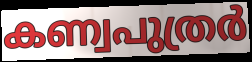
കണ്വപുത്രർ